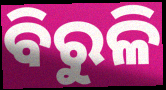
ବିରୁଳି